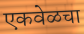
एकवेळचा